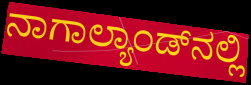
ನಾಗಾಲ್ಯಾಂಡ್‌ನಲ್ಲಿ